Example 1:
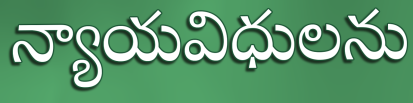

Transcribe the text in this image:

న్యాయవిధులను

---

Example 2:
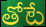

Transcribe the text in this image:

తోటే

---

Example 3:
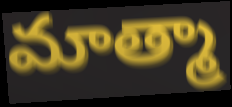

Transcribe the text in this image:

మాత్మా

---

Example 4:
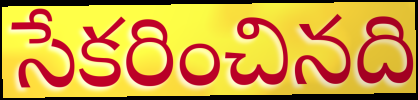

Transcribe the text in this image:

సేకరించినది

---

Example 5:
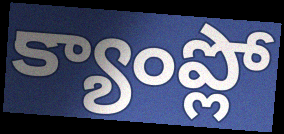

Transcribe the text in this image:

క్యాంప్లో